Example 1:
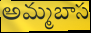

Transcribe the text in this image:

అమ్మబాస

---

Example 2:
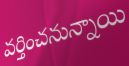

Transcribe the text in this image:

వర్తించనున్నాయి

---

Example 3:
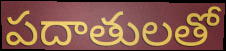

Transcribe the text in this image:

పదాతులతో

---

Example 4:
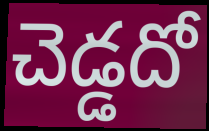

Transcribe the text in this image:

చెడ్డదో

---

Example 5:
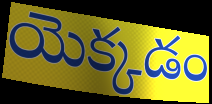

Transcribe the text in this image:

యెక్కడం